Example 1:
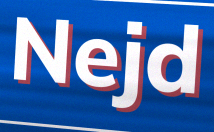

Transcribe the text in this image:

Nejd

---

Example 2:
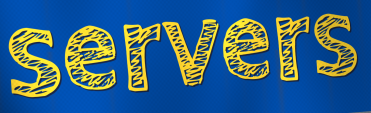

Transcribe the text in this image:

servers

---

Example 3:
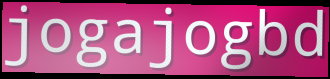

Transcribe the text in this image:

jogajogbd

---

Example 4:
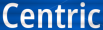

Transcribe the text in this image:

Centric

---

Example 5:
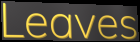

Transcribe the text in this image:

Leaves